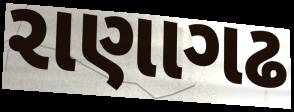
રાણાગઢ